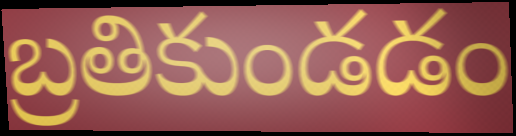
బ్రతికుండడం